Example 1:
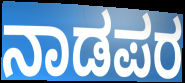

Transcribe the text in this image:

ನಾಡಪರ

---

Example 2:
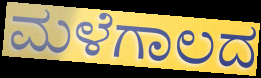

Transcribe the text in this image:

ಮಳೆಗಾಲದ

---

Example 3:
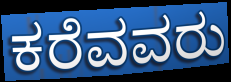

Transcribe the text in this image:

ಕರೆವವರು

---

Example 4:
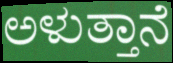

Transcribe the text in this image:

ಅಳುತ್ತಾನೆ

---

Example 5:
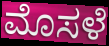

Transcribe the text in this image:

ಮೊಸಳೆ